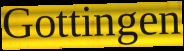
Gottingen